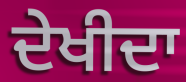
ਦੇਖੀਦਾ